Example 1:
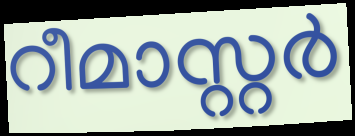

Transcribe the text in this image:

റീമാസ്റ്റർ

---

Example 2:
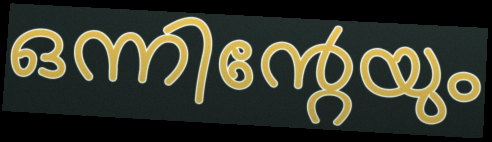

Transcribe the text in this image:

ഒന്നിന്റേയും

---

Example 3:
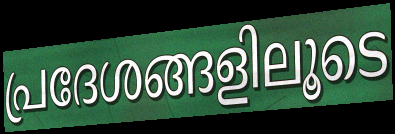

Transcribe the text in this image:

പ്രദേശങ്ങളിലൂടെ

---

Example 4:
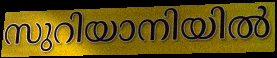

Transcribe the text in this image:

സുറിയാനിയിൽ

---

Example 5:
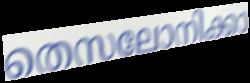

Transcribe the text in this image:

തെസലോനിക്കാ